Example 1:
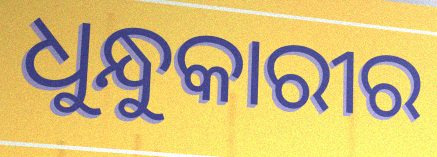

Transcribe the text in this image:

ଧୁନ୍ଧୁକାରୀର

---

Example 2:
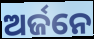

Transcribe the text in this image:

ଅର୍ଜନେ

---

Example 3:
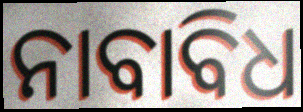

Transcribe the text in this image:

ନାବାବିଧ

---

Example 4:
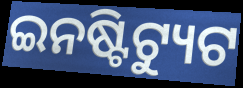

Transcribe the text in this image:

ଇନଷ୍ଟିଟ୍ୟୁଟ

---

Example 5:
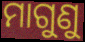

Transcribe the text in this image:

ମାଗୁଣୁ